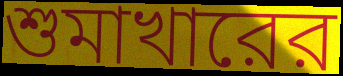
শুমাখারের